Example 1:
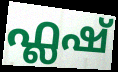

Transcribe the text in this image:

ഫ്ലഷ്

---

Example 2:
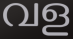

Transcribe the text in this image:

വള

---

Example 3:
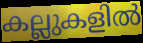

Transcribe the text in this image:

കല്ലുകളിൽ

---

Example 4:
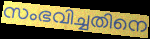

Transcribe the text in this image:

സംഭവിച്ചതിനെ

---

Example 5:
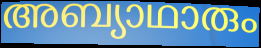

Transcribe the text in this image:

അബ്യാഥാരും